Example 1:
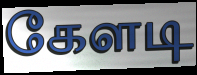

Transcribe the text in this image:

கேளடி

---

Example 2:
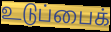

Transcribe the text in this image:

உடுப்பைக்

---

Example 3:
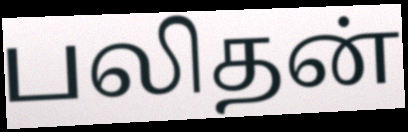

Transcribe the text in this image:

பலிதன்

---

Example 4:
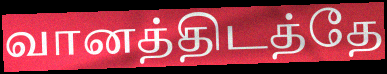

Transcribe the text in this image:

வானத்திடத்தே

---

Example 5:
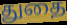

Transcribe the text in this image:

துதை